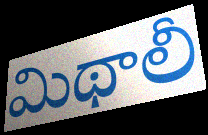
మిథాలీ